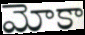
మోకా